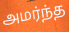
அமர்ந்த